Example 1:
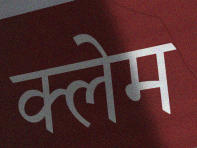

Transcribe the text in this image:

क्लेम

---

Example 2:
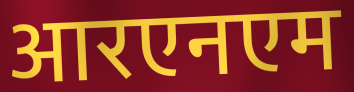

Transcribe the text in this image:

आरएनएम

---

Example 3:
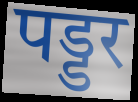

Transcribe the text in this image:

पड्डर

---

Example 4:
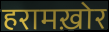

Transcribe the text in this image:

हरामख़ोर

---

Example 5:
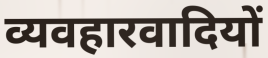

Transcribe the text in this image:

व्यवहारवादियों